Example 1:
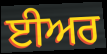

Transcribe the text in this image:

ਈਅਰ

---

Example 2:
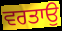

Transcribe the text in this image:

ਵਰਤਾਉ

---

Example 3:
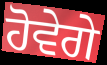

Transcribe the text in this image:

ਹੋਵੇਗੇ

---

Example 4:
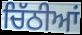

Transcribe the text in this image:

ਚਿੱਠੀਆਂ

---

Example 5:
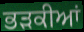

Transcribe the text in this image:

ਭੜਕੀਆਂ